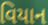
વિયાન